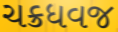
ચક્રધવજ